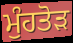
ਮੁੰਹਤੋੜ